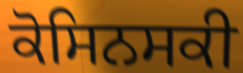
ਕੋਸਿਨਸਕੀ